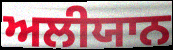
ਅਲੀਯਾਨ